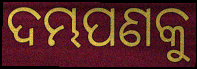
ଦମ୍ଭପଣକୁ